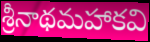
శ్రీనాథమహాకవి